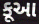
કૂઆ